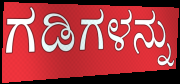
ಗಡಿಗಳನ್ನು